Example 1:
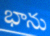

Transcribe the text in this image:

భాను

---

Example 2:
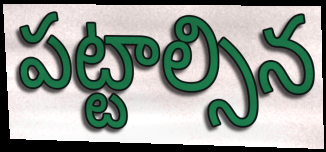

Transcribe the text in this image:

పట్టాల్సిన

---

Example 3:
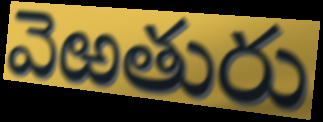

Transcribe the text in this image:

వెఱతురు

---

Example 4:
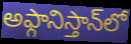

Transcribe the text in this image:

అఫ్గానిస్తాన్‌లో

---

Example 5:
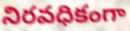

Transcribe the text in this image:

నిరవధికంగా